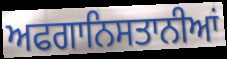
ਅਫਗਾਨਿਸਤਾਨੀਆਂ